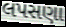
લપસણા